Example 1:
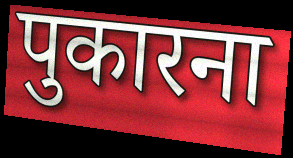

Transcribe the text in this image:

पुकारना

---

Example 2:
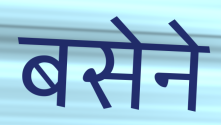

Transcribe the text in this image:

बसेने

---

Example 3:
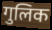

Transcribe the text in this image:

गुलिक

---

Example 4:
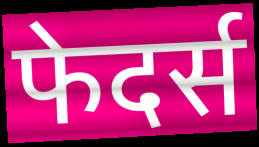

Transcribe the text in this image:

फेदर्स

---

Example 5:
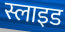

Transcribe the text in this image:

स्लाइड